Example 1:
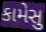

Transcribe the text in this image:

કામેસુ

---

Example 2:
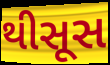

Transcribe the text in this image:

થીસૂસ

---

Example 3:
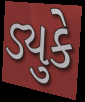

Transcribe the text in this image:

ડ્યુકે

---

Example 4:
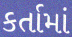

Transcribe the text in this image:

કર્તામાં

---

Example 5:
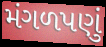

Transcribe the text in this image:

મંગળપણું